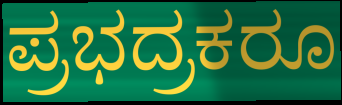
ಪ್ರಭದ್ರಕರೂ